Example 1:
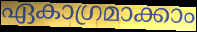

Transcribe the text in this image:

ഏകാഗ്രമാക്കാം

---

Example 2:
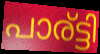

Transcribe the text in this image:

പാര്ട്ടി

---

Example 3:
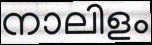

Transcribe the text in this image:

നാലിളം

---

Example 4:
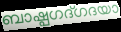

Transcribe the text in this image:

ബാഷ്പഗദ്ഗദയാ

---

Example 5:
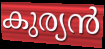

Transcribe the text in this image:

കുര്യൻ